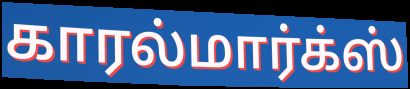
காரல்மார்க்ஸ்